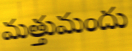
మత్తుమందు